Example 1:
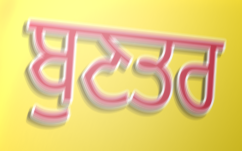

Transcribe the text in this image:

ਬੁਣਤਰ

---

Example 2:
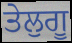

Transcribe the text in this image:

ਤੇਲੁਗੂ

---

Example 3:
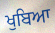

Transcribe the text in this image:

ਖੁਬਿਆ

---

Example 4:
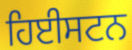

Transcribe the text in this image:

ਹਿਈਸਟਨ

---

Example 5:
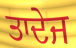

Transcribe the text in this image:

ਤਾਦੇਜ